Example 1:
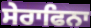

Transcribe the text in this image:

ਸੇਰਾਫਿਨਾ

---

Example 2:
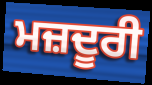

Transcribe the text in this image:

ਮਜ਼ਦੂਰੀ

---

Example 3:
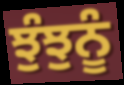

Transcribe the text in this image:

ਝੁੰਝੁਨੂੰ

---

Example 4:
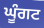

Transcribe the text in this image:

ਘੂੰਗਟ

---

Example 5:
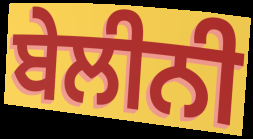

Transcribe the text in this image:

ਬੇਲੀਨੀ